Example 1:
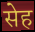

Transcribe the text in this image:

सेह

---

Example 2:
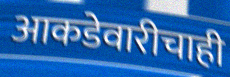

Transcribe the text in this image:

आकडेवारीचाही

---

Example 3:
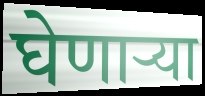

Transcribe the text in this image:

घेणार्‍या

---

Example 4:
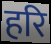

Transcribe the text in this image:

हरि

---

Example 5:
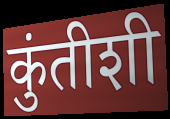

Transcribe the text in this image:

कुंतीशी